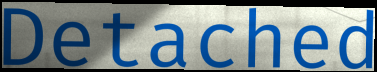
Detached